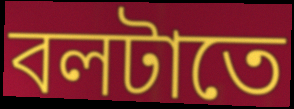
বলটাতে